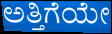
ಅತ್ತಿಗೆಯೇ